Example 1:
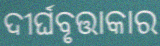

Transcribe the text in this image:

ଦୀର୍ଘବୃତ୍ତାକାର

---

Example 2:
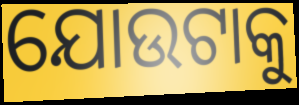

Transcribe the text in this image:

ଯୋଉଟାକୁ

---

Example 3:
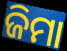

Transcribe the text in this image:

ଜିମା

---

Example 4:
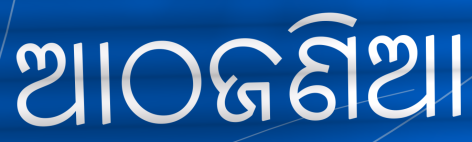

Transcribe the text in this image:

ଆଠଜଣିଆ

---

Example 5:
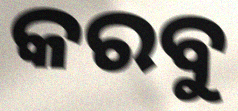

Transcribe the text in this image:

କରବୁ